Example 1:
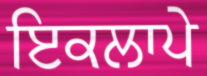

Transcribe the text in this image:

ਇਕਲਾਪੇ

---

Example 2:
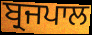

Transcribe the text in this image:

ਬ੍ਰਜਪਾਲ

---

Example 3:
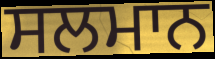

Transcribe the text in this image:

ਸਲਮਾਨ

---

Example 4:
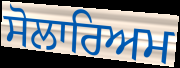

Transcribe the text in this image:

ਸੋਲਾਰਿਅਮ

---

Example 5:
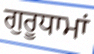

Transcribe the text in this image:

ਗੁਰੂਧਾਮਾਂ